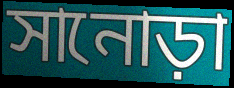
সানোড়া